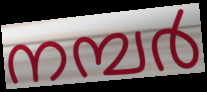
നമ്പർ